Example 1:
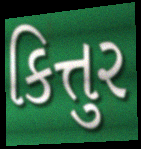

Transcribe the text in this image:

કિત્તુર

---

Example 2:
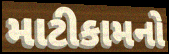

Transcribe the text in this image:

માટીકામનો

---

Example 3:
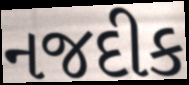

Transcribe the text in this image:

નજદીક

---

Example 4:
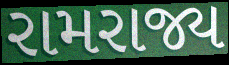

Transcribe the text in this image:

રામરાજ્ય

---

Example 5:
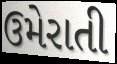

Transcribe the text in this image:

ઉમેરાતી